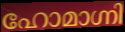
ഹോമാഗ്നി